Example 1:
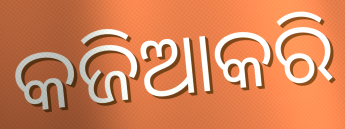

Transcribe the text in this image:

କଜିଆକରି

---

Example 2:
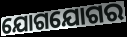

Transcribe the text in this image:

ଯୋଗଯୋଗର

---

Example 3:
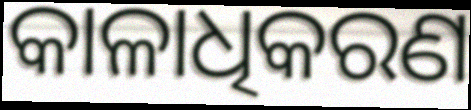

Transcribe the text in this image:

କାଳାଧିକରଣ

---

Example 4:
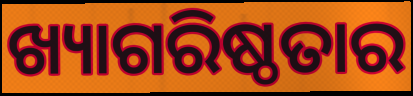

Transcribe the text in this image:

ଖ୍ୟାଗରିଷ୍ଠତାର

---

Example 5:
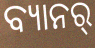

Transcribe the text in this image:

ବ୍ୟାନର୍